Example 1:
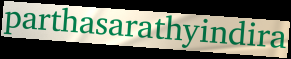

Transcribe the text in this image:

parthasarathyindira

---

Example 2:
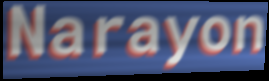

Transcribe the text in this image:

Narayon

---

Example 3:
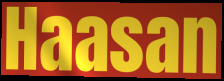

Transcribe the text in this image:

Haasan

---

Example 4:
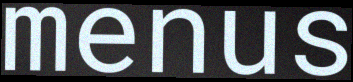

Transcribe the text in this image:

menus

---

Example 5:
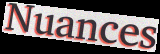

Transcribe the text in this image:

Nuances